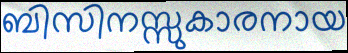
ബിസിനസ്സുകാരനായ